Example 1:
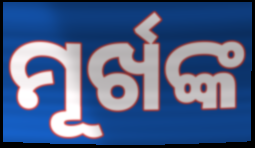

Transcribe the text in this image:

ମୂର୍ଖଙ୍କ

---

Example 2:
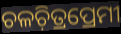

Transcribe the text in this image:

ଚଳଚ଼ିତ୍ରପ୍ରେମୀ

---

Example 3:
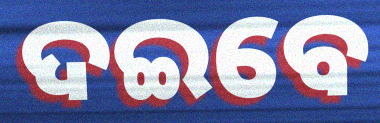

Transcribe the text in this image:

ଦଇବେ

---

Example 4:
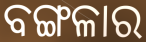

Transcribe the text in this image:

ବଙ୍ଗଳାର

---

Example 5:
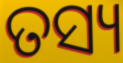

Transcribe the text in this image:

ତସ୍ୟ